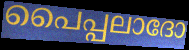
പൈപ്പലാദോ